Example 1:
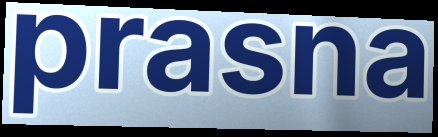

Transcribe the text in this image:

prasna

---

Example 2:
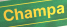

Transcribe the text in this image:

Champa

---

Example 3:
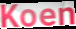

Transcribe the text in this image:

Koen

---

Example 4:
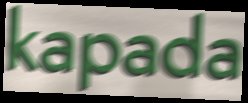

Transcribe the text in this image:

kapada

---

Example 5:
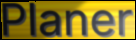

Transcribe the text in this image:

Planer